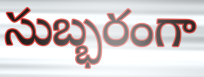
సుబ్భరంగా